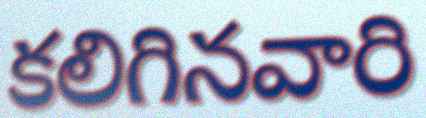
కలిగినవారి